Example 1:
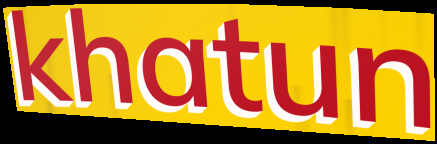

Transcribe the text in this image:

khatun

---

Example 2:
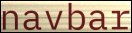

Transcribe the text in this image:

navbar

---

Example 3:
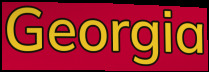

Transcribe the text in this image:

Georgia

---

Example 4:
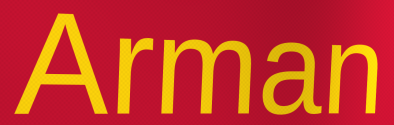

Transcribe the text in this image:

Arman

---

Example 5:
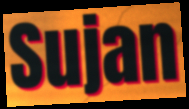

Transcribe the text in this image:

Sujan